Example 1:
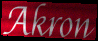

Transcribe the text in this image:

Akron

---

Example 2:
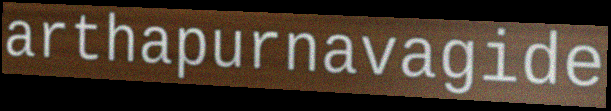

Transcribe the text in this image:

arthapurnavagide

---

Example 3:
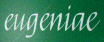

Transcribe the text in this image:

eugeniae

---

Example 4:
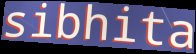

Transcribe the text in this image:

sibhita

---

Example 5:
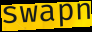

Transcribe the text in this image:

swapn